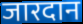
जारदान